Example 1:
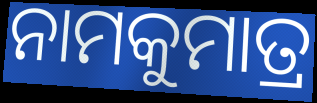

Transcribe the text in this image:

ନାମକୁମାତ୍ର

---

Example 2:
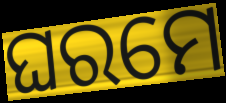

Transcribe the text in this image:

ଘରମେ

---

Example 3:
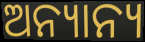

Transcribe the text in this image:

ଅନ୍ଯାନ୍ଯ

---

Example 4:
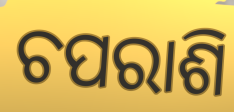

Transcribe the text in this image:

ଚପରାଶି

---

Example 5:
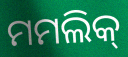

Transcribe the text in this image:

ମମଲିକ୍